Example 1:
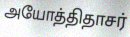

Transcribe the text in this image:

அயோத்திதாசர்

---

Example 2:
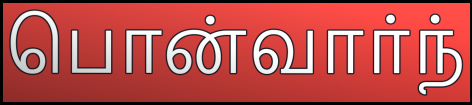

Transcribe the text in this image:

பொன்வார்ந்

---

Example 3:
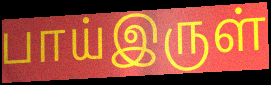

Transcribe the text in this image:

பாய்இருள்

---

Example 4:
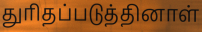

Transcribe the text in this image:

துரிதப்படுத்தினாள்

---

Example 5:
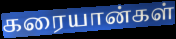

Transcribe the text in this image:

கரையான்கள்